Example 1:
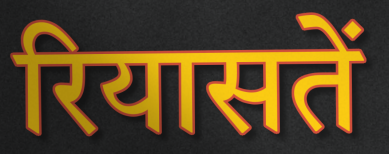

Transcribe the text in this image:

रियासतें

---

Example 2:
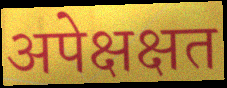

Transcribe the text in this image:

अपेक्षक्षत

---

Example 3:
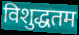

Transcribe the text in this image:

विशुद्धतम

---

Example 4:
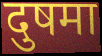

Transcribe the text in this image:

दुषमा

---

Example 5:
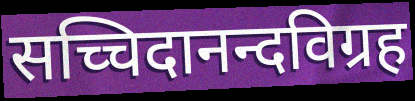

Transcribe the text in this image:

सच्चिदानन्दविग्रह